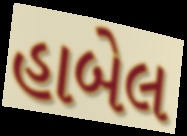
હાબેલ